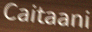
Caitaani